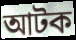
আটক